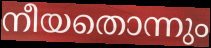
നീയതൊന്നും